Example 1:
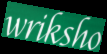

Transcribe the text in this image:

wriksho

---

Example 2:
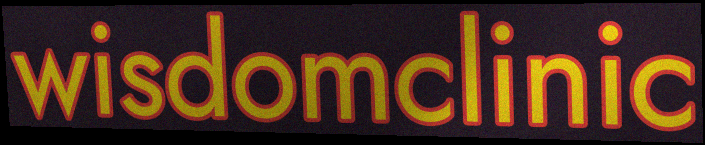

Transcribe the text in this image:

wisdomclinic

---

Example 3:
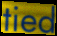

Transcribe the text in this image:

tied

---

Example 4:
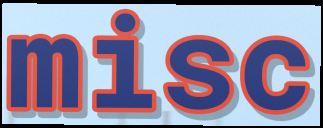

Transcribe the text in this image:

misc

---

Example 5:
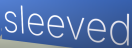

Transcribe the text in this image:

sleeved